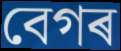
বেগৰ